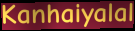
Kanhaiyalal